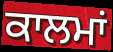
ਕਾਲਮਾਂ